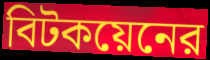
বিটকয়েনের